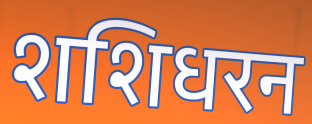
शशिधरन